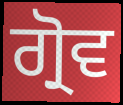
ਗ੍ਰੋਵ